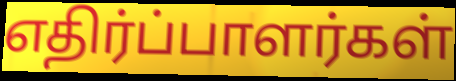
எதிர்ப்பாளர்கள்